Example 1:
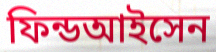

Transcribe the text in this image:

ফিন্ডআইসেন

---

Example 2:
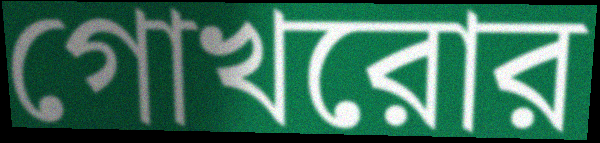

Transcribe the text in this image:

গোখরোর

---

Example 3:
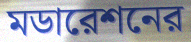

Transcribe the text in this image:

মডারেশনের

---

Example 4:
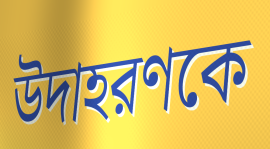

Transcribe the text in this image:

উদাহরণকে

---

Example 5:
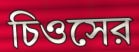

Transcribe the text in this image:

চিওসের